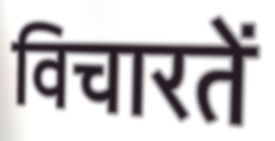
विचारतें